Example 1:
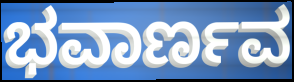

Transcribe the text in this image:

ಭವಾರ್ಣವ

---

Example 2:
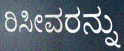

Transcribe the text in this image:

ರಿಸೀವರನ್ನು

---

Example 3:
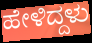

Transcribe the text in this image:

ಹೇಳಿದ್ದಳು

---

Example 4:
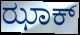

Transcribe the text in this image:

ಝಾಕ್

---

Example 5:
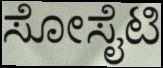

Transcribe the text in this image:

ಸೋಸೈಟಿ